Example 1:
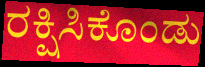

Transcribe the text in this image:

ರಕ್ಷಿಸಿಕೊಂಡು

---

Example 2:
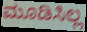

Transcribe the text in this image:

ಮೂಡಿಸಿಲ್ಲ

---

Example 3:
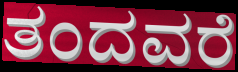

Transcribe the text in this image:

ತಂದವರೆ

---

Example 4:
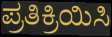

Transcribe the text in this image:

ಪ್ರತಿಕ್ರಿಯಿಸಿ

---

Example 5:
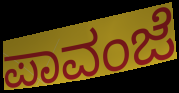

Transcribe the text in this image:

ಪಾವಂಜೆ